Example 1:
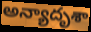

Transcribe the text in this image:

అన్యాదృశా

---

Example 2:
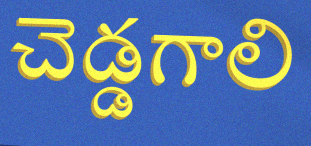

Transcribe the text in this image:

చెడ్డగాలి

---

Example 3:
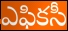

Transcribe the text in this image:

ఎఫికసీ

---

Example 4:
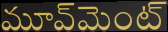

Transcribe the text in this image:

మూవ్‌మెంట్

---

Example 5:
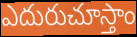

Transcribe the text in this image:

ఎదురుచూస్తాం